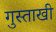
गुस्ताखी